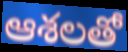
ఆశలతో